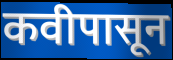
कवीपासून